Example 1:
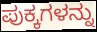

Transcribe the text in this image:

ಪುಕ್ಕಗಳನ್ನು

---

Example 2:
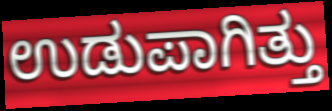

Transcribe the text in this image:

ಉಡುಪಾಗಿತ್ತು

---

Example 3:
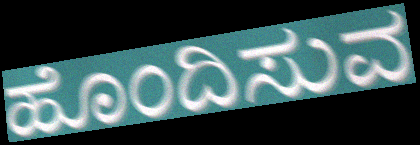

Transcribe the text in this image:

ಹೊಂದಿಸುವ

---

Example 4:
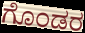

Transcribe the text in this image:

ಗೊಂಡರ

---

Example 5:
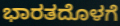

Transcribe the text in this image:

ಭಾರತದೊಳಗೆ